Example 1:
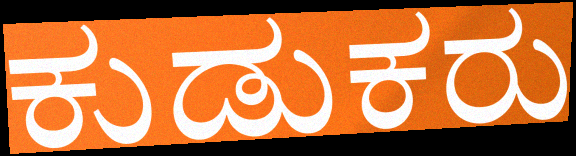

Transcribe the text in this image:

ಕುಡುಕರು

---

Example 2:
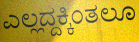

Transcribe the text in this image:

ಎಲ್ಲದ್ದಕ್ಕಿಂತಲೂ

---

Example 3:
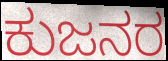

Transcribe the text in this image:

ಕುಜನರ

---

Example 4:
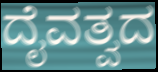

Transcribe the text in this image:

ದೈವತ್ವದ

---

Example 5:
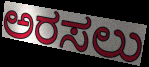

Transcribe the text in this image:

ಅರಸಲು